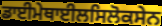
ਡਾਈਮੇਥਾਈਲਸਿਲੋਕਸੇਨ